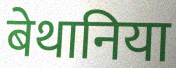
बेथानिया